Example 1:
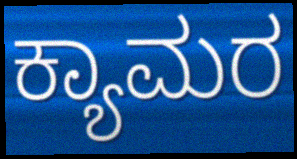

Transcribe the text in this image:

ಕ್ಯಾಮರ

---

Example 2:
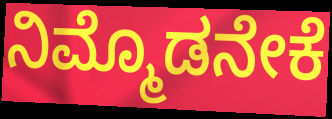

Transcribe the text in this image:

ನಿಮ್ಮೊಡನೇಕೆ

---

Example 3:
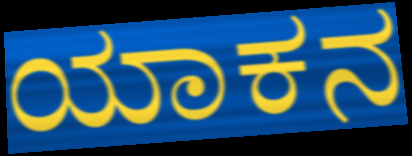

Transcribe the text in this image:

ಯಾಕನ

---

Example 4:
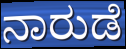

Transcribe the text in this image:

ನಾರುಡೆ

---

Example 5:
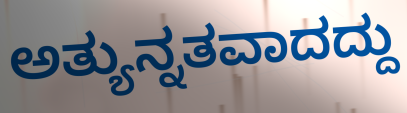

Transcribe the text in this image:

ಅತ್ಯುನ್ನತವಾದದ್ದು